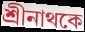
শ্রীনাথকে